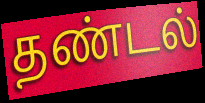
தண்டல்